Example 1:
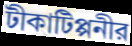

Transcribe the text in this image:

টীকাটিপ্পনীর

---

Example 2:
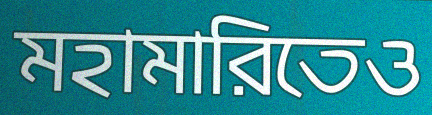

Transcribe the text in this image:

মহামারিতেও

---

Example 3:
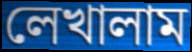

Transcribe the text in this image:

লেখালাম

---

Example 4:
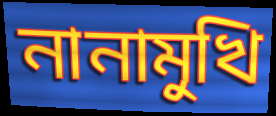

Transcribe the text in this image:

নানামুখি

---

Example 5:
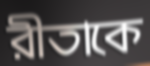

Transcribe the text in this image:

রীতাকে